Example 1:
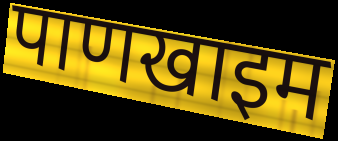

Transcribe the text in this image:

पाणखाइम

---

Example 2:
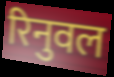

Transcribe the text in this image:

रिनुवल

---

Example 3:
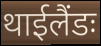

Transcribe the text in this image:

थाईलैंडः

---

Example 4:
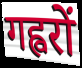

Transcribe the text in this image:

गह्वरों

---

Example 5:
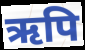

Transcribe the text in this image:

ऋपि